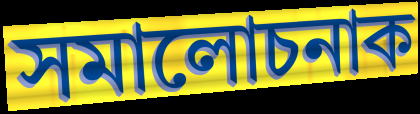
সমালোচনাক